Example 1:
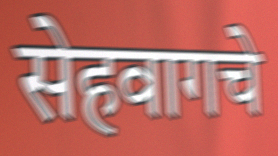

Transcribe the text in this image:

सेहवागचे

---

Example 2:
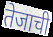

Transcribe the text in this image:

तेजाची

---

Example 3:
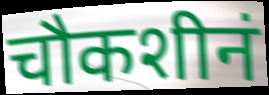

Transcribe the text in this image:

चौकशीनं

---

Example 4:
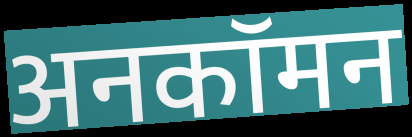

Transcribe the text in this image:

अनकॉमन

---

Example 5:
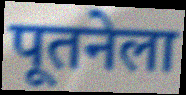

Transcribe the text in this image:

पूतनेला